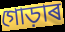
গোড়াৰ